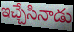
ఇచ్చేసినాడు